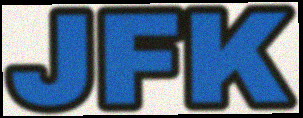
JFK